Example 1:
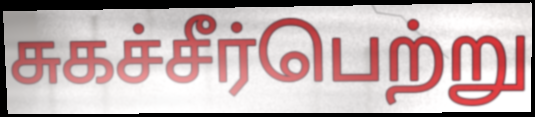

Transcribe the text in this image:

சுகச்சீர்பெற்று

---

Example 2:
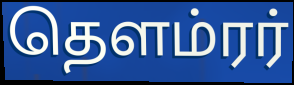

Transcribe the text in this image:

தௌம்ரர்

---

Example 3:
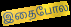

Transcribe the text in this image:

இதைபோல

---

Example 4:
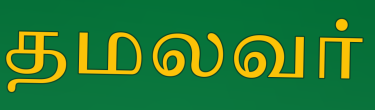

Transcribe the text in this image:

தமலவர்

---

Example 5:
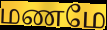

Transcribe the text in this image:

மணமே